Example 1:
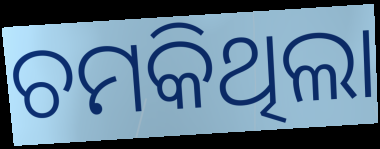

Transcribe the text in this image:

ଚମକିଥିଲା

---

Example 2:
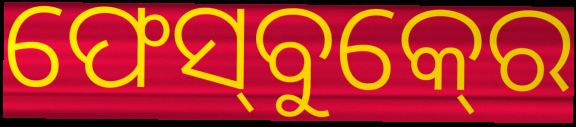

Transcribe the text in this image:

ଫେସ୍‍ବୁକ୍‍ରେ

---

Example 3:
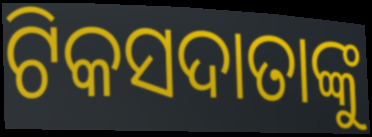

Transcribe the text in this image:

ଟିକସଦାତାଙ୍କୁ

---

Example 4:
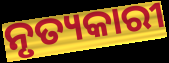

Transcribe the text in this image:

ନୃତ୍ୟକାରୀ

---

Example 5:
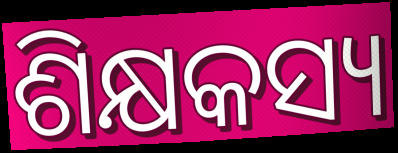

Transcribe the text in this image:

ଶିକ୍ଷକସ୍ୟ